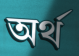
অৰ্থ